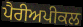
ਪੈਰੀਅਪੀਕਲ